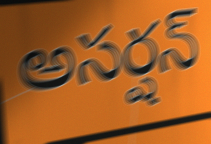
అసర్షన్